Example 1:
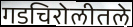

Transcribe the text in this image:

गडचिरोलीतले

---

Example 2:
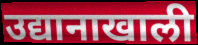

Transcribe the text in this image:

उद्यानाखाली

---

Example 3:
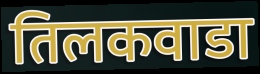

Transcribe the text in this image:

तिलकवाडा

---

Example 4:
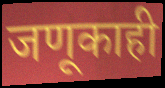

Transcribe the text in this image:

जणूकाही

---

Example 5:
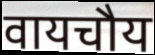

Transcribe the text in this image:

वायचौय